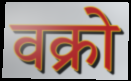
वक्रो